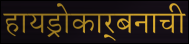
हायड्रोकार्बनाची